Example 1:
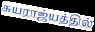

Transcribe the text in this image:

சுயராஜ்யத்தில்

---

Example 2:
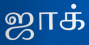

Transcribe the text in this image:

ஜாக்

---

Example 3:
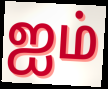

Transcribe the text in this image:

ஐம்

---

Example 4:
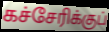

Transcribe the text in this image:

கச்சேரிக்குப்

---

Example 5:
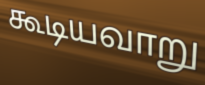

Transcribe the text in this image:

கூடியவாறு